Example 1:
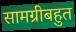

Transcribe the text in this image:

सामग्रीबहुत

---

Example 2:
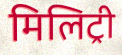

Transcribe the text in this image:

मिलिट्री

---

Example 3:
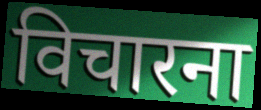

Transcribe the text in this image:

विचारना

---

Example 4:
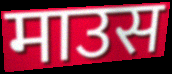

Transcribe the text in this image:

माउस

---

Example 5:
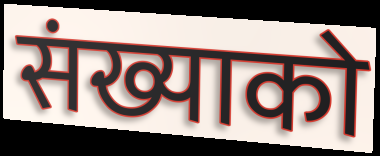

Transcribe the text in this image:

संख्याको